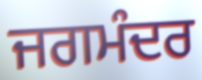
ਜਗਮੰਦਰ